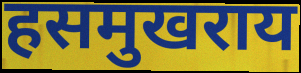
हसमुखराय